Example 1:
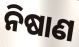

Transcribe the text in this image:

ନିଷାଣ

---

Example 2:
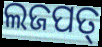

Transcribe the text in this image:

ଲଜପତ୍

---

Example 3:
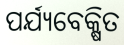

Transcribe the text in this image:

ପର୍ଯ୍ୟବେକ୍ଷିତ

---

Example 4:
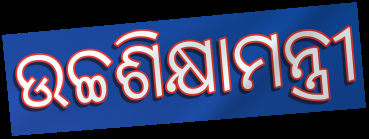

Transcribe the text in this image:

ଉଚ୍ଚଶିକ୍ଷାମନ୍ତ୍ରୀ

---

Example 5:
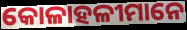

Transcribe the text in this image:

କୋଳାହଳୀମାନେ